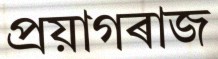
প্ৰয়াগৰাজ